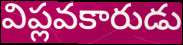
విప్లవకారుడు